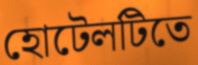
হোটেলটিতে